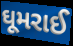
ઘૂમરાઈ